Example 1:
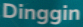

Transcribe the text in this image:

Dinggin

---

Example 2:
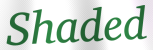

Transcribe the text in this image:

Shaded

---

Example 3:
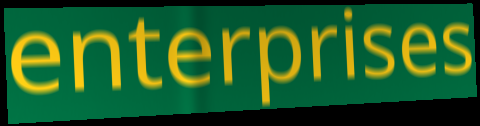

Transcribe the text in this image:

enterprises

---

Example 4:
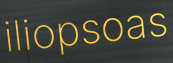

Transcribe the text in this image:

iliopsoas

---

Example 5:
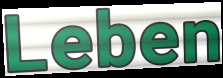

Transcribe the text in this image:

Leben